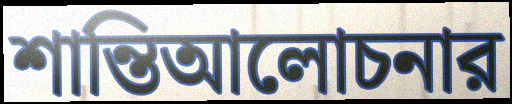
শান্তিআলোচনার